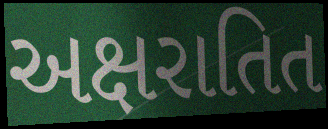
અક્ષરાતિત